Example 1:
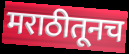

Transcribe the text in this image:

मराठीतूनच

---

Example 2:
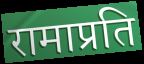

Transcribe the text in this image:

रामाप्रति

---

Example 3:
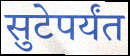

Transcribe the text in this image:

सुटेपर्यंत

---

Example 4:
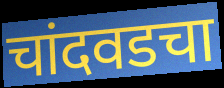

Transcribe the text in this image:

चांदवडचा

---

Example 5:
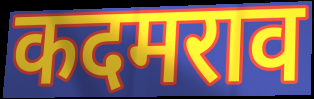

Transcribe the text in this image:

कदमराव